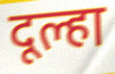
दूल्हा